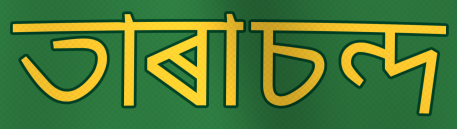
তাৰাচন্দ